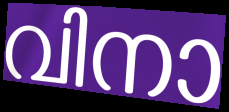
വിനാ